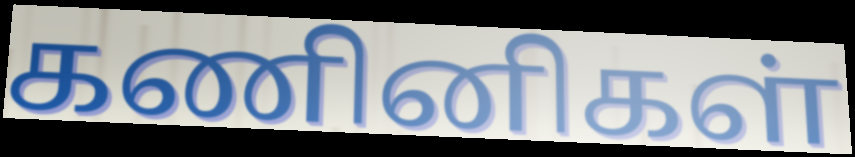
கணினிகள்